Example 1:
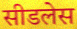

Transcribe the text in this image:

सीडलेस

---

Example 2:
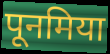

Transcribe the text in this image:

पूनमिया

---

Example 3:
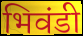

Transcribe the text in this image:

भिवंडी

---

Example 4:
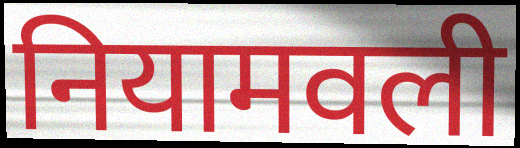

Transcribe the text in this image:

नियामवली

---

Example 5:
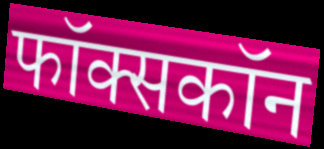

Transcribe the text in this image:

फॉक्सकॉन